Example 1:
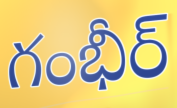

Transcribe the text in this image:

గంభీర్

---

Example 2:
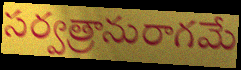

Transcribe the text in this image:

సర్వత్రానురాగమే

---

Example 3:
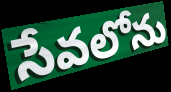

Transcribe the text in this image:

సేవలోను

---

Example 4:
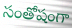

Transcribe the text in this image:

సంతోషంగా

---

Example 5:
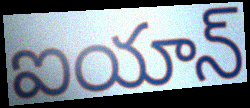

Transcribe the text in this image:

ఐయాన్